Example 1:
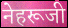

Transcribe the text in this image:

नेहरूजी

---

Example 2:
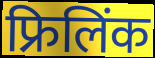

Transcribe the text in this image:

फ्रिलिंक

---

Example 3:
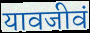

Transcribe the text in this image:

यावजीवं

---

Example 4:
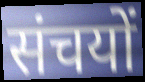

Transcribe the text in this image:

संचयों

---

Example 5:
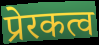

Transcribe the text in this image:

प्रेरकत्व